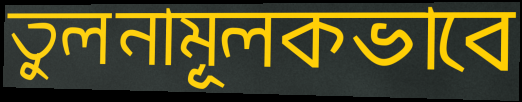
তুলনামূলকভাবে